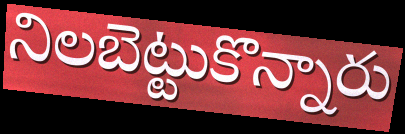
నిలబెట్టుకొన్నారు